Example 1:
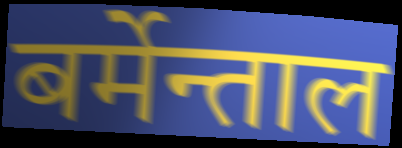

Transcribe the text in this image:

बर्मेन्ताल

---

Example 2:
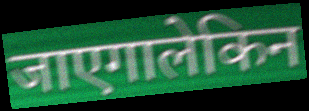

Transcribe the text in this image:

जाएगालेकिन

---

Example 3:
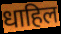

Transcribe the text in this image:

धाहिल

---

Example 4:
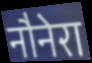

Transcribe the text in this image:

नौनेरा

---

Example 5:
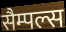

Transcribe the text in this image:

सैम्‍पल्‍स